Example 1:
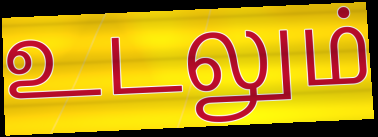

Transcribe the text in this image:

உடலும்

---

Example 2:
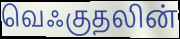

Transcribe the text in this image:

வெஃகுதலின்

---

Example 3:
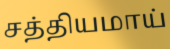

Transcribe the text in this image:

சத்தியமாய்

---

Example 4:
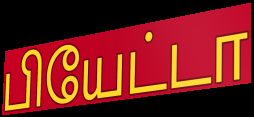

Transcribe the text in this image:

பியேட்டா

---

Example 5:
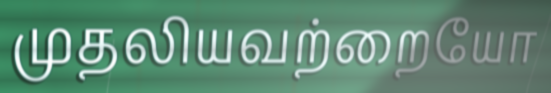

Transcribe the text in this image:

முதலியவற்றையோ